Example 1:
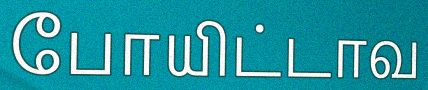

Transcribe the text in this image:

போயிட்டாவ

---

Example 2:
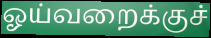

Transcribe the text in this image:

ஓய்வறைக்குச்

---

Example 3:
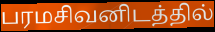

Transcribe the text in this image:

பரமசிவனிடத்தில்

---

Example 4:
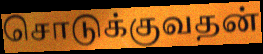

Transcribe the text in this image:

சொடுக்குவதன்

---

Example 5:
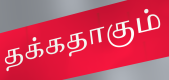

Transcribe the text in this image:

தக்கதாகும்